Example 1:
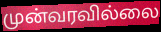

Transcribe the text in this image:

முன்வரவில்லை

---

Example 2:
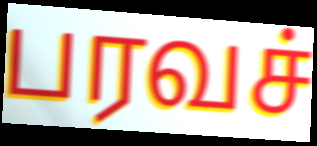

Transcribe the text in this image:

பரவச்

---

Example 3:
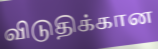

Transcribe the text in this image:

விடுதிக்கான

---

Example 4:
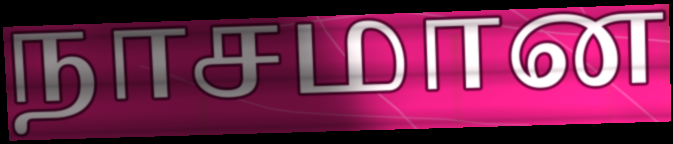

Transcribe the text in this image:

நாசமான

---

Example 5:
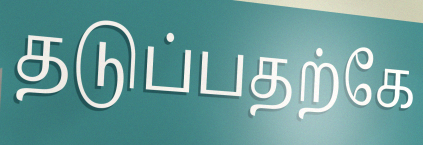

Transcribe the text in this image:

தடுப்பதற்கே